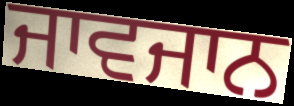
ਜਾਵਜਾਨ